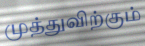
முத்துவிற்கும்